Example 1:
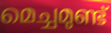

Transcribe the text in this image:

മെച്ചമുണ്ട്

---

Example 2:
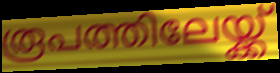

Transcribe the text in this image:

രൂപത്തിലേയ്ക്ക്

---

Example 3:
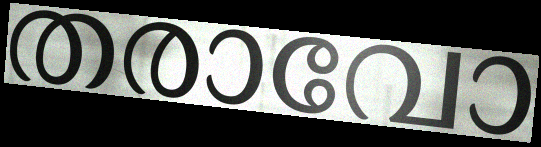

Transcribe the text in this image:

തരാവോ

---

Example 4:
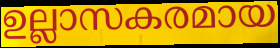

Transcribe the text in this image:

ഉല്ലാസകരമായ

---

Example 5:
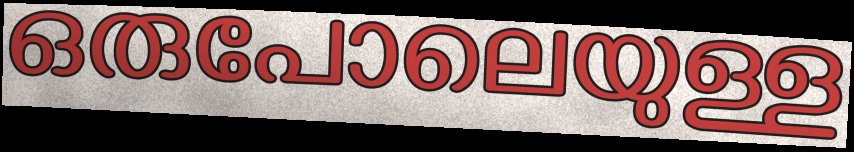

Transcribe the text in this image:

ഒരുപോലെയുള്ള